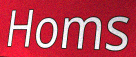
Homs